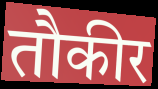
तौकीर